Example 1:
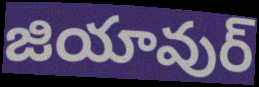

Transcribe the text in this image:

జియావుర్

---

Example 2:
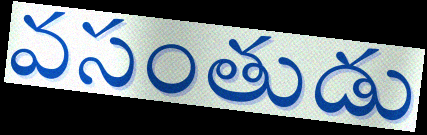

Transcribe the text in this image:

వసంతుడు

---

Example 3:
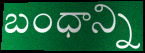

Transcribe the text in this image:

బంధాన్ని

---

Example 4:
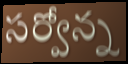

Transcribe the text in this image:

సర్వోన్న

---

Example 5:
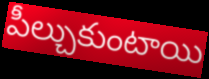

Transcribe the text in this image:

పీల్చుకుంటాయి